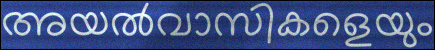
അയൽവാസികളെയും